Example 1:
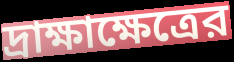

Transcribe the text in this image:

দ্রাক্ষাক্ষেত্রের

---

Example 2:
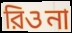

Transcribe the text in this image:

রিওনা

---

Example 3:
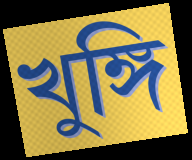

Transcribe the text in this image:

খুঙ্গি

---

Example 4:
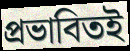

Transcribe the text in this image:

প্রভাবিতই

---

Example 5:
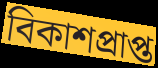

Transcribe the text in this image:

বিকাশপ্রাপ্ত